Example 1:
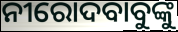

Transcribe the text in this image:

ନୀରୋଦବାବୁଙ୍କୁ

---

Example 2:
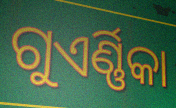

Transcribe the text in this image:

ଗୁଏର୍ଣ୍ଣିକା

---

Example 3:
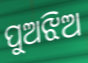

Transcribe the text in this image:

ପୁଅଝିଅ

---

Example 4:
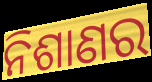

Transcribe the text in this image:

ନିଶାଣର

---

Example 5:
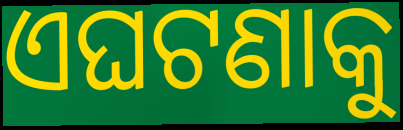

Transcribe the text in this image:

ଏଘଟଣାକୁ